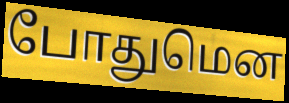
போதுமென